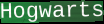
Hogwarts